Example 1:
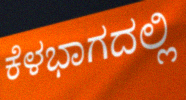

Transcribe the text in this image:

ಕೆಳಭಾಗದಲ್ಲಿ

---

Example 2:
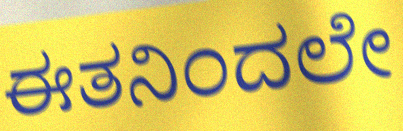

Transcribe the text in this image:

ಈತನಿಂದಲೇ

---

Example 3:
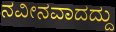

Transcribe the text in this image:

ನವೀನವಾದದ್ದು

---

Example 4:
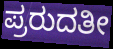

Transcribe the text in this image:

ಪ್ರರುದತೀ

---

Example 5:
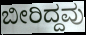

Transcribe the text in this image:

ಬೀರಿದ್ದವು